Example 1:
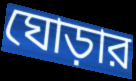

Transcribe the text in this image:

ঘোড়ার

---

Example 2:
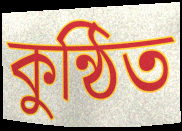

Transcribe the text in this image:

কুন্ঠিত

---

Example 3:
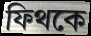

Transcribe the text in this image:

ফিথকে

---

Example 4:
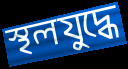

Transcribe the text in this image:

স্থলযুদ্ধে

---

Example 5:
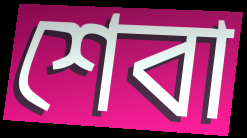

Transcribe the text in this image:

শেবা